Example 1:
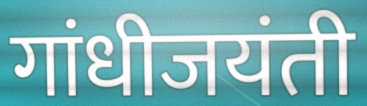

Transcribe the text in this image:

गांधीजयंती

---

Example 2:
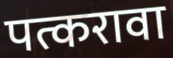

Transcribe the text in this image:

पत्करावा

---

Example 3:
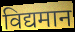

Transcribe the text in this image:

विद्यमान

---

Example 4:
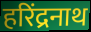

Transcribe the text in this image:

हरिंद्रनाथ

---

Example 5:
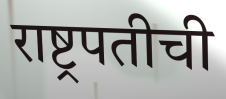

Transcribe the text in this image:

राष्ट्रपतीची